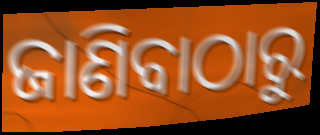
ଜାଣିବାଠାରୁ